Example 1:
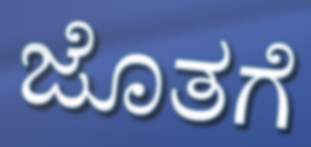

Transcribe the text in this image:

ಜೊತಗೆ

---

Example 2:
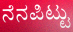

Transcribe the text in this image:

ನೆನಪಿಟ್ಟು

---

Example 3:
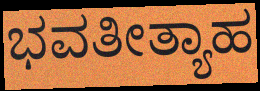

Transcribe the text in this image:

ಭವತೀತ್ಯಾಹ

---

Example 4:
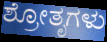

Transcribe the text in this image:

ಶ್ರೋತೃಗಳು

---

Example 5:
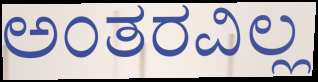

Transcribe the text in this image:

ಅಂತರವಿಲ್ಲ